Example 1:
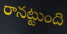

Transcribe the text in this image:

రానట్టుంది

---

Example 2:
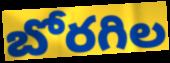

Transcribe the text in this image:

బోరగిల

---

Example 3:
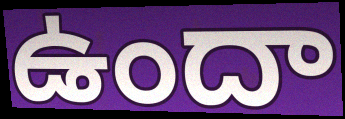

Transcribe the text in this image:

ఉందా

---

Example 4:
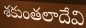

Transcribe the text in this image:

శకుంతలాదేవి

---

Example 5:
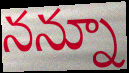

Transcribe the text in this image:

నన్నూ